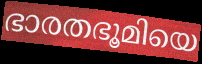
ഭാരതഭൂമിയെ